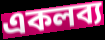
একলব্য